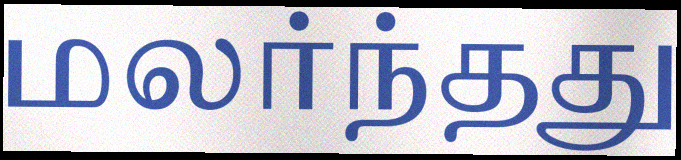
மலர்ந்தது